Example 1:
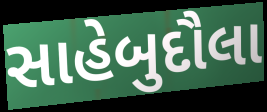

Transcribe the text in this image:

સાહેબુદૌલા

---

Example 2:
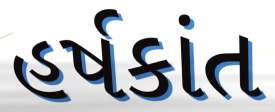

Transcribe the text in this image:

હર્ષકાંત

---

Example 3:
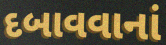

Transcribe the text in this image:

દબાવવાનાં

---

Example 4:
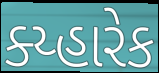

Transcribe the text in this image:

ક્ય્હારેક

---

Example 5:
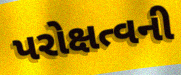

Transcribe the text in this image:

પરોક્ષત્વની